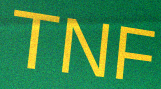
TNF